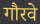
गौरवे